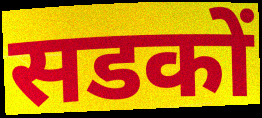
सडकों